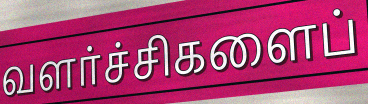
வளர்ச்சிகளைப்